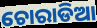
ଚୋରାଡିଆ